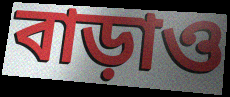
বাড়াও